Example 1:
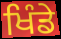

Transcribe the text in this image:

ਖਿੰਡੇ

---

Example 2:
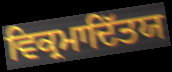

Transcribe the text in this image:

ਵਿਕ੍ਰਮਾਦਿੱਤਯ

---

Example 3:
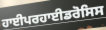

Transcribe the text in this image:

ਹਾਈਪਰਹਾਈਡਰੋਸਿਸ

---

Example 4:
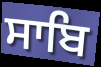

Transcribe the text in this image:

ਸਾਬਿ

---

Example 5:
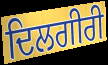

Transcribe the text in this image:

ਦਿਲਗੀਰੀ